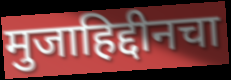
मुजाहिद्दीनचा